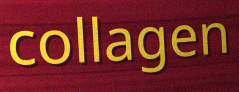
collagen